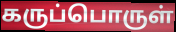
கருப்பொருள்